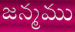
జన్మము